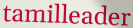
tamilleader